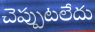
చెప్పుటలేదు